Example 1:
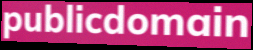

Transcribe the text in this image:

publicdomain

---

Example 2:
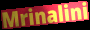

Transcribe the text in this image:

Mrinalini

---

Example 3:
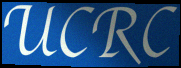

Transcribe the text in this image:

UCRC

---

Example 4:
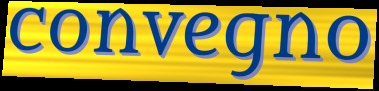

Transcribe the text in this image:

convegno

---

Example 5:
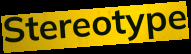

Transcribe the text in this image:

Stereotype